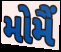
મોમૈં